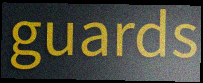
guards